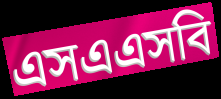
এসএএসবি